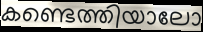
കണ്ടെത്തിയാലോ